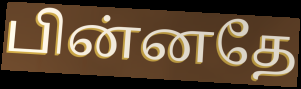
பின்னதே